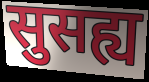
सुसह्य